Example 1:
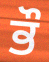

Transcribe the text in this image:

ਭੌ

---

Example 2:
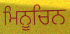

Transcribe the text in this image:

ਮਿਨੂਚਿਨ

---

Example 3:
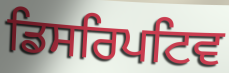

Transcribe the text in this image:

ਡਿਸਰਿਪਟਿਵ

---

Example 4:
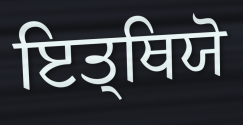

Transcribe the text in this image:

ਇਤ੍ਥਿਯੋ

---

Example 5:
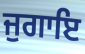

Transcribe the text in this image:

ਜੁਗਾਇ